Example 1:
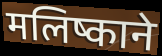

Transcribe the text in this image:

मलिष्काने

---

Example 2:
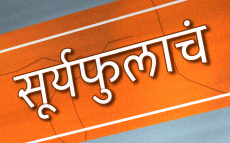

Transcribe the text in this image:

सूर्यफुलाचं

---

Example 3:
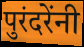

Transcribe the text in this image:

पुरंदरेंनी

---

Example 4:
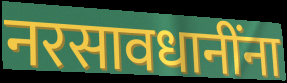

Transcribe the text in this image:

नरसावधानींना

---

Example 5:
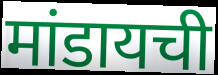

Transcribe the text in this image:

मांडायची